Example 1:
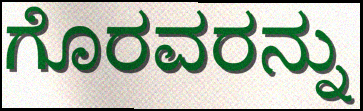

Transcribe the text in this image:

ಗೊರವರನ್ನು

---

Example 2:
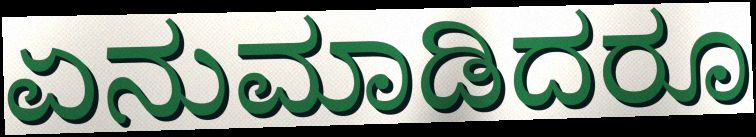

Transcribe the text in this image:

ಏನುಮಾಡಿದರೂ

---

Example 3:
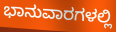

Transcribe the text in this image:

ಭಾನುವಾರಗಳಲ್ಲಿ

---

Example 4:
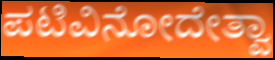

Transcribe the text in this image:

ಪಟಿವಿನೋದೇತ್ವಾ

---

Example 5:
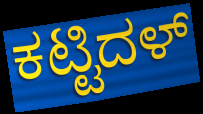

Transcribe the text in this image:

ಕಟ್ಟಿದಳ್